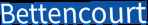
Bettencourt